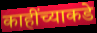
काहींच्याकडे